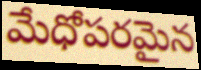
మేధోపరమైన